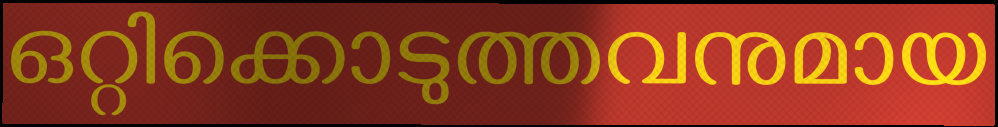
ഒറ്റിക്കൊടുത്തവനുമായ